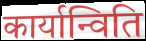
कार्यान्विति